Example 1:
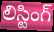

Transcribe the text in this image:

లిస్టింగ్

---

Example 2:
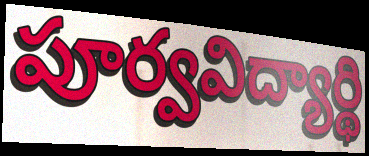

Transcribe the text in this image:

పూర్వవిద్యార్థి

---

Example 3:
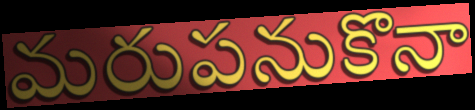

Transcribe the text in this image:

మరుపనుకొనా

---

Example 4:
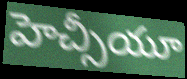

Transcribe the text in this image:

హెచ్సీయూ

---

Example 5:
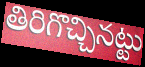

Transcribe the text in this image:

తిరిగొచ్చినట్టు